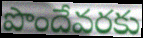
పొందేవరకు